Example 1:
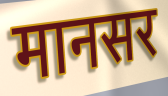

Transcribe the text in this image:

मानसर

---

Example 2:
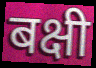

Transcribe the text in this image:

बक्षी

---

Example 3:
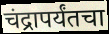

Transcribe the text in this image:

चंद्रापर्यंतचा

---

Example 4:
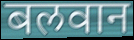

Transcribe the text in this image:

बलवान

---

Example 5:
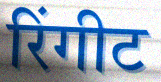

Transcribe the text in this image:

रिंगीट